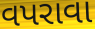
વપરાવા